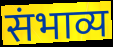
संभाव्य